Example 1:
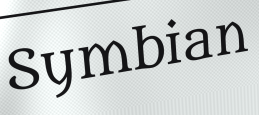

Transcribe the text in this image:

Symbian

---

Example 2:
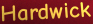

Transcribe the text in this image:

Hardwick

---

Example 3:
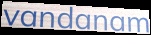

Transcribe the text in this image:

vandanam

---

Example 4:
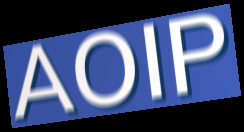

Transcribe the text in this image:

AOIP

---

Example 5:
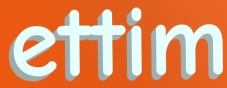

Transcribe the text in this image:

ettim